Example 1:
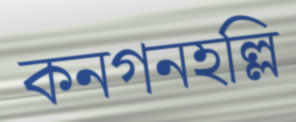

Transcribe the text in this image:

কনগনহল্লি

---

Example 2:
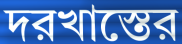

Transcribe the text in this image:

দরখাস্তের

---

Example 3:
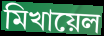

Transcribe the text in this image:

মিখায়েল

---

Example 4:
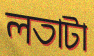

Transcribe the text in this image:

লতাটা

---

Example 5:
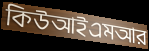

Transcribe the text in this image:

কিউআইএমআর